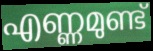
എണ്ണമുണ്ട്